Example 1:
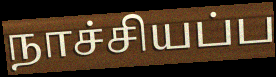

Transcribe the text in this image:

நாச்சியப்ப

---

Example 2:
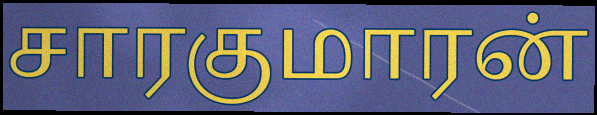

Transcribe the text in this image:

சாரகுமாரன்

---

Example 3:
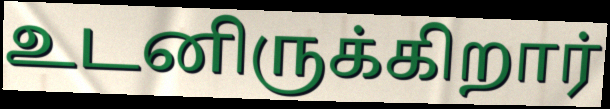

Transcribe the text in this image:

உடனிருக்கிறார்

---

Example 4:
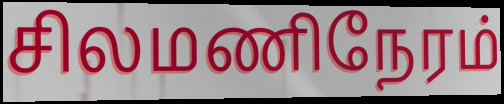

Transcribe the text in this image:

சிலமணிநேரம்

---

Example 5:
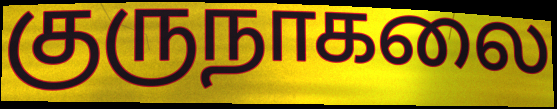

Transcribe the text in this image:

குருநாகலை